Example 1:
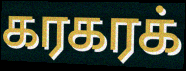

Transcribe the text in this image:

கரகரக்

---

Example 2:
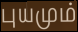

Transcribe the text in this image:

புயமும்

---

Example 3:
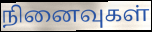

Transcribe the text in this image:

நினைவுகள்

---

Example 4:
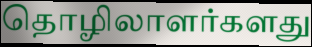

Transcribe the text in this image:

தொழிலாளர்களது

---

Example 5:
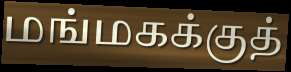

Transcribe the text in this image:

மங்மகக்குத்